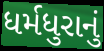
ધર્મધુરાનું